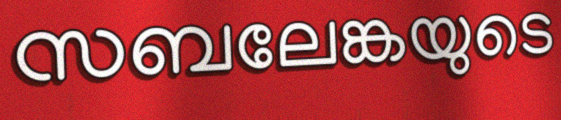
സബലേങ്കയുടെ